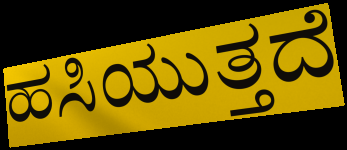
ಹಸಿಯುತ್ತದೆ